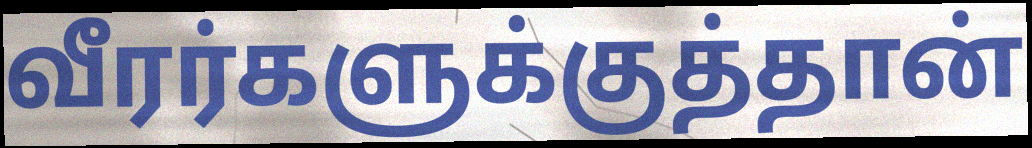
வீரர்களுக்குத்தான்